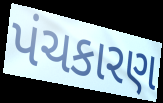
પંચકારણ